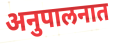
अनुपालनात